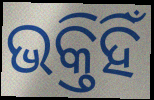
ଭକ୍ତିହିଁ